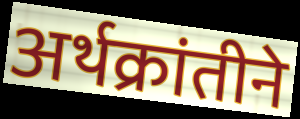
अर्थक्रांतीने